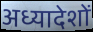
अध्यादेशों